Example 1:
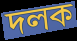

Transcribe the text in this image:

দলক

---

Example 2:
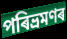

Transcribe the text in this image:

পৰিভ্ৰমণৰ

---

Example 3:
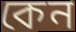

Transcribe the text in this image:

কেন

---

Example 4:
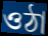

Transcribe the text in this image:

ওঠা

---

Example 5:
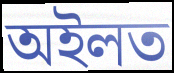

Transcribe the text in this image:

অইলত